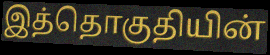
இத்தொகுதியின்